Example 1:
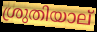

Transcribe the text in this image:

ശ്രുതിയാല്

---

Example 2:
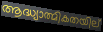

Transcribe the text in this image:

ആദ്ധ്യാത്മികതയില്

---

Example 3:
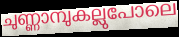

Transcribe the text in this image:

ചുണ്ണാമ്പുകല്ലുപോലെ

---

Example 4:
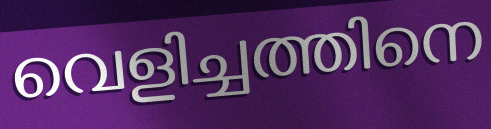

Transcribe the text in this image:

വെളിച്ചത്തിനെ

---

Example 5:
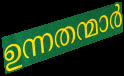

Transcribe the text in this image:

ഉന്നതന്മാർ